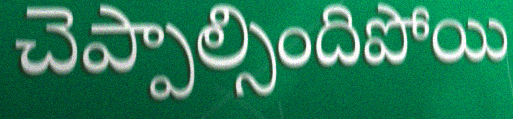
చెప్పాల్సిందిపోయి